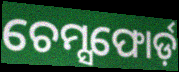
ଚେମ୍ସଫୋର୍ଡ଼